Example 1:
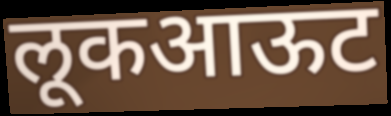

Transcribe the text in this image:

लूकआऊट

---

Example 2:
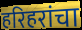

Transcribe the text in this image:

हरिहरांचा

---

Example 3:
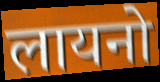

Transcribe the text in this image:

लायनो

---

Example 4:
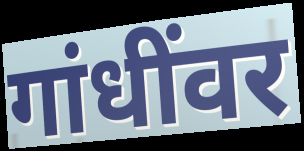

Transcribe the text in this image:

गांधींवर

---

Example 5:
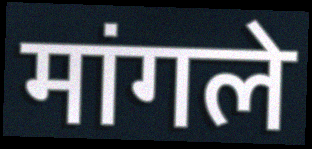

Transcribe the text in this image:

मांगले